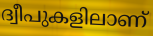
ദ്വീപുകളിലാണ്